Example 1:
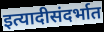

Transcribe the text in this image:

इत्यादीसंदर्भात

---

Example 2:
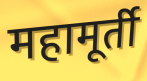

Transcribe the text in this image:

महामूर्ती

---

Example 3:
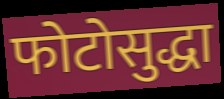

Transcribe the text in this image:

फोटोसुद्धा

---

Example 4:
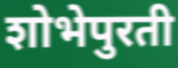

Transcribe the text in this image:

शोभेपुरती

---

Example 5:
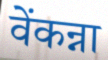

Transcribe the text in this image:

वेंकन्ना